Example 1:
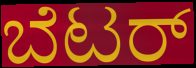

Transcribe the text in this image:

ಬೆಟರ್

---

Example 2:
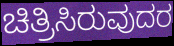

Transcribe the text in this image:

ಚಿತ್ರಿಸಿರುವುದರ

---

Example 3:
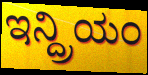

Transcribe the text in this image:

ಇನ್ದ್ರಿಯಂ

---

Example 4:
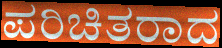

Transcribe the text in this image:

ಪರಿಚಿತರಾದ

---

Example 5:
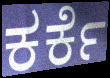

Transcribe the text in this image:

ಕರ್ಕೆ